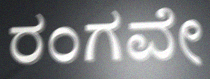
ರಂಗವೇ